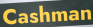
Cashman